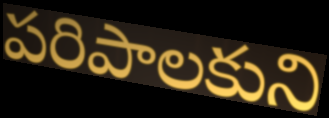
పరిపాలకుని